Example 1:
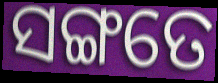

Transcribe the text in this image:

ସଙ୍ଗତେ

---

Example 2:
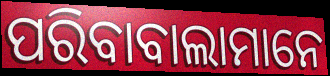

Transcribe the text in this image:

ପରିବାବାଲାମାନେ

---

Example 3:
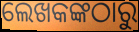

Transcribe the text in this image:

ଲେଖକଙ୍କଠାରୁ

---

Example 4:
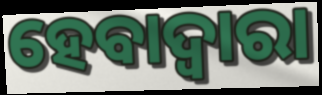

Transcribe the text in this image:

ହେବାଦ୍ୱାରା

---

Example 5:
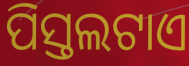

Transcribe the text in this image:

ପିସ୍ତଲଟାଏ